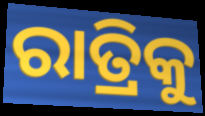
ରାତ୍ରିକୁ